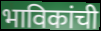
भाविकांची